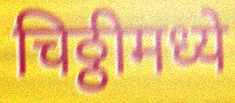
चिठ्ठीमध्ये